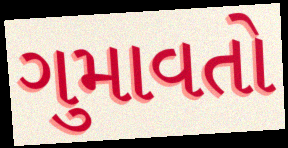
ગુમાવતો